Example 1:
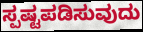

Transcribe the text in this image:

ಸ್ಪಷ್ಟಪಡಿಸುವುದು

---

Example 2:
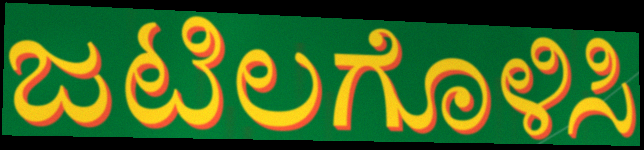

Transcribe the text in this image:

ಜಟಿಲಗೊಳಿಸಿ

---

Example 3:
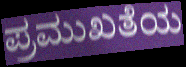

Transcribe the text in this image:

ಪ್ರಮುಖತೆಯ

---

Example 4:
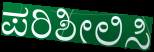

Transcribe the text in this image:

ಪರಿಶೀಲಿಸಿ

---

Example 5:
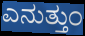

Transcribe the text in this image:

ಎನುತ್ತುಂ